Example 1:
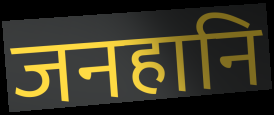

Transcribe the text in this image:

जनहानि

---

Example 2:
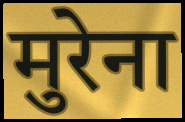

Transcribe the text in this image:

मुरेना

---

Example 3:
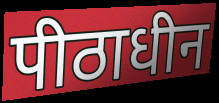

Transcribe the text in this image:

पीठाधीन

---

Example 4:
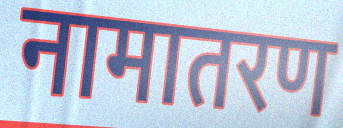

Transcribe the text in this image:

नामातरण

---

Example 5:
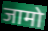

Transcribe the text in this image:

जामो